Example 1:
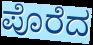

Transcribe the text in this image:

ಪೊರೆದ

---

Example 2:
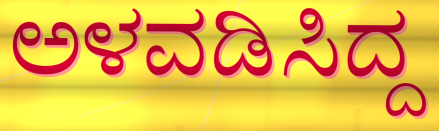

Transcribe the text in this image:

ಅಳವಡಿಸಿದ್ದ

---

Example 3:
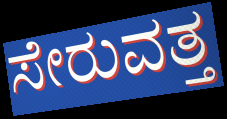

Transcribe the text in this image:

ಸೇರುವತ್ತ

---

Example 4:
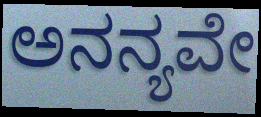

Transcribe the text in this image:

ಅನನ್ಯವೇ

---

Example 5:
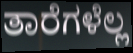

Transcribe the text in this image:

ತಾರೆಗಳೆಲ್ಲ